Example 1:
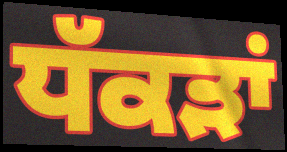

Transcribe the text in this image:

ਧੱਕੜਾਂ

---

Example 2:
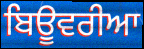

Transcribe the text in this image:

ਬਿਊਵਰੀਆ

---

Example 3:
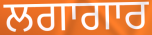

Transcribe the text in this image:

ਲਗਾਗਾਰ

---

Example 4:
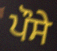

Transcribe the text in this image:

ਪੌਸੇ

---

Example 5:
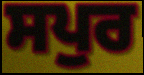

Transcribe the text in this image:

ਸਪੁਰ